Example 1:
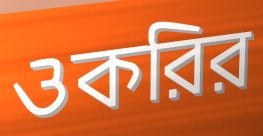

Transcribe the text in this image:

ওকরির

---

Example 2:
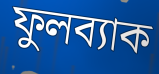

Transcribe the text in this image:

ফুলব্যাক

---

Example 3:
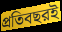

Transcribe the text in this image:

প্রতিবছরই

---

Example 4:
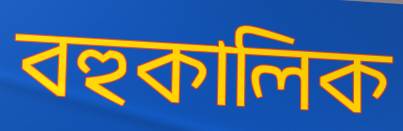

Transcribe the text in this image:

বহুকালিক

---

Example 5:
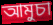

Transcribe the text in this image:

আমুচা